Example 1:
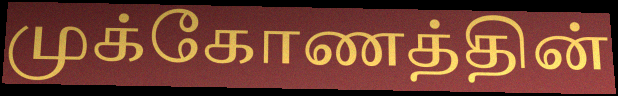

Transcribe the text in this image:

முக்கோணத்தின்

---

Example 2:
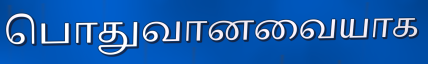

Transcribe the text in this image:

பொதுவானவையாக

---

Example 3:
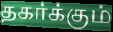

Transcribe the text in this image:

தகர்க்கும்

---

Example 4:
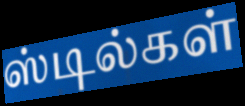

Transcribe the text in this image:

ஸ்டில்கள்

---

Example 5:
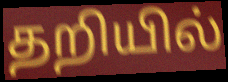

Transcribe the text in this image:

தறியில்